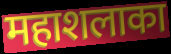
महाशलाका